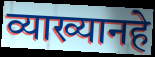
व्याख्यानहे